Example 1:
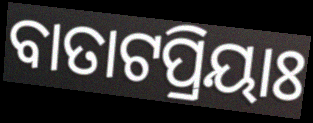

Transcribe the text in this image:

ବାତାଟପ୍ରିୟାଃ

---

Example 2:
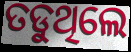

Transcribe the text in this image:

ତଡୁଥିଲେ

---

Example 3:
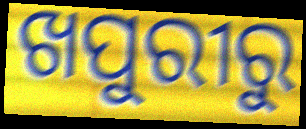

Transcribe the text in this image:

ଖପୁରୀରୁ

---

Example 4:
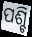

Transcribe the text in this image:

ପଶ୍ଚି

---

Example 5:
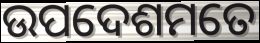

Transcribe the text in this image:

ଉପଦେଶମତେ